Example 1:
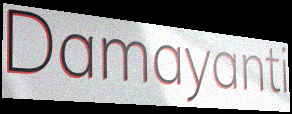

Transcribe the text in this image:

Damayanti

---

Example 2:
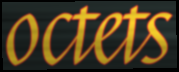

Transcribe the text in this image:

octets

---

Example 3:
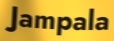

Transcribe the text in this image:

Jampala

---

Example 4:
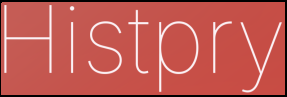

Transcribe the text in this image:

Histpry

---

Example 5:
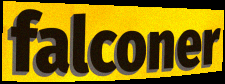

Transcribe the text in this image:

falconer